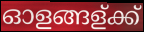
ഓളങ്ങള്ക്ക്